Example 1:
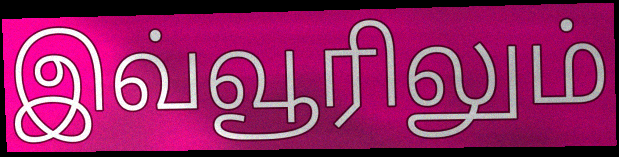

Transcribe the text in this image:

இவ்வூரிலும்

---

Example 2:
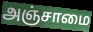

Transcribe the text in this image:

அஞ்சாமை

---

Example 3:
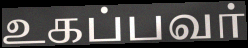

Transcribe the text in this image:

உகப்பவர்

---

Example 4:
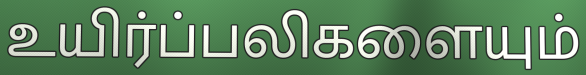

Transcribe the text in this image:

உயிர்ப்பலிகளையும்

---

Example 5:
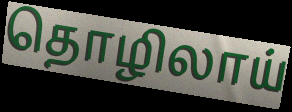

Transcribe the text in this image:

தொழிலாய்